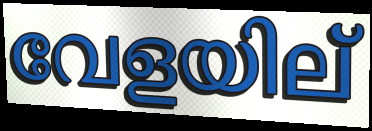
വേളയില്